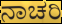
ನಾಚರಿ